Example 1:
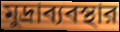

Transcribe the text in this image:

মুদ্রাব্যবস্থার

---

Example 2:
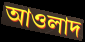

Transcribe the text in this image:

আওলাদ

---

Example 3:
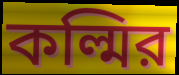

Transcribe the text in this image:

কল্মির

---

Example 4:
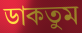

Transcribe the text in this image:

ডাকতুম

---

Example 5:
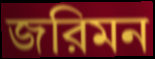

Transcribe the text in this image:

জরিমন